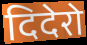
दिदेरो